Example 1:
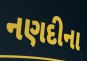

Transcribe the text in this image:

નણદીના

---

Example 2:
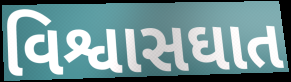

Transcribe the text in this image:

વિશ્વાસઘાત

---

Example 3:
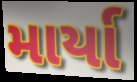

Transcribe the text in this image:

માર્યા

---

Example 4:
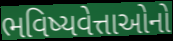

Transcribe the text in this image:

ભવિષ્યવેત્તાઓનો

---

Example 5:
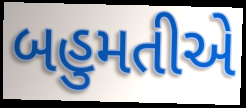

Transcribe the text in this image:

બહુમતીએ